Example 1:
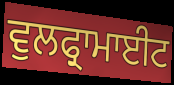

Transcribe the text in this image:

ਵੁਲਫ੍ਰਾਮਾਈਟ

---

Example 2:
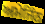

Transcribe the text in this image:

ਅਮੇਜਿੰਨ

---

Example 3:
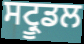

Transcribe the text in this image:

ਸਟ੍ਰੂਡਲ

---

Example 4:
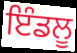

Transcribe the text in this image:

ਇੰਡਲੂ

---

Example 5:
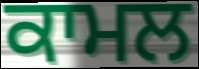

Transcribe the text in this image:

ਕਾਮਲ